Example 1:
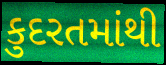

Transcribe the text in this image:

કુદરતમાંથી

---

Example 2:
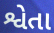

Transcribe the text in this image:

શ્વેતા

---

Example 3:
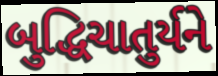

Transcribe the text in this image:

બુદ્ધિચાતુર્યને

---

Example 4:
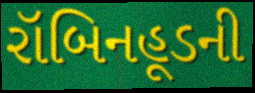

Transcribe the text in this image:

રૉબિનહૂડની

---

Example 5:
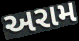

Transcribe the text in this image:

અરામ